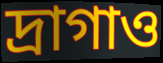
দ্রাগাও